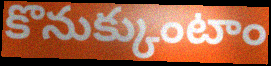
కొనుక్కుంటాం